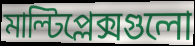
মাল্টিপ্লেক্সগুলো